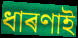
ধাৰণাই